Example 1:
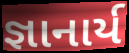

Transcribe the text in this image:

જ્ઞાનાર્ય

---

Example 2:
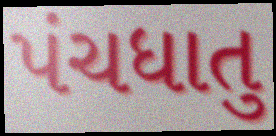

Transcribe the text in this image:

પંચધાતુ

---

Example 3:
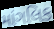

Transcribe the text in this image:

માંગલિક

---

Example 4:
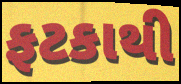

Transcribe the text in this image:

ફટકાથી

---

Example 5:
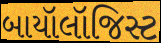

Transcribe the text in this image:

બાયૉલૉજિસ્ટ